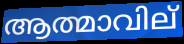
ആത്മാവില്